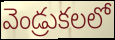
వెండ్రుకలలో